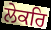
ਲੇਕਰਿ